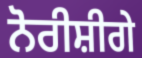
ਨੋਰੀਸ਼ੀਗੇ